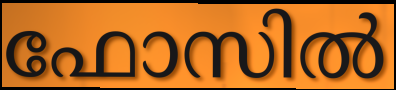
ഫോസിൽ